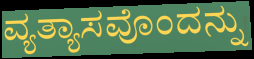
ವ್ಯತ್ಯಾಸವೊಂದನ್ನು